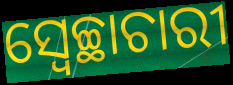
ସ୍ଵେଚ୍ଛାଚାରୀ